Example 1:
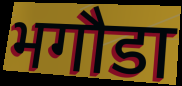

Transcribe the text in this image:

भगौडा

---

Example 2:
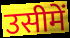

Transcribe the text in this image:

उसीमें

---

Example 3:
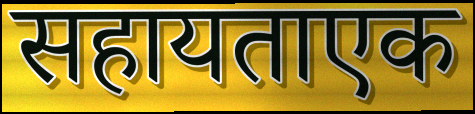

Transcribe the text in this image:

सहायताएक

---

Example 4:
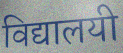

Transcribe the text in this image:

विद्यालयी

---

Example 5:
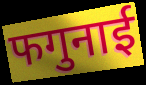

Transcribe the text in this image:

फगुनाई